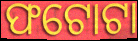
ଫଟୋଟା